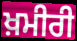
ਖ਼ਮੀਰੀ